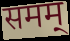
समम्